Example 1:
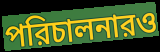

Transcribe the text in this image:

পরিচালনারও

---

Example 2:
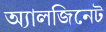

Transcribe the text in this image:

অ্যালজিনেট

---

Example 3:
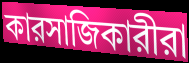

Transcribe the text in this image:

কারসাজিকারীরা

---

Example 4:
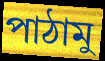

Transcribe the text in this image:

পাঠামু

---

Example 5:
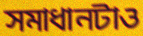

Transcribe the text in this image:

সমাধানটাও